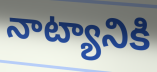
నాట్యానికి